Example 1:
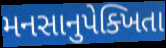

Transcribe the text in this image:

મનસાનુપેક્ખિતા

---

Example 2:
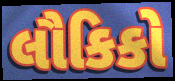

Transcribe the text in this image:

લૌકિકો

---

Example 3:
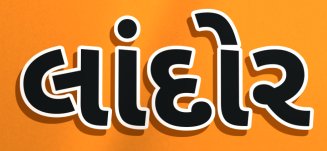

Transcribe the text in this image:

લાંદોર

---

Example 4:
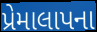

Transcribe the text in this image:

પ્રેમાલાપના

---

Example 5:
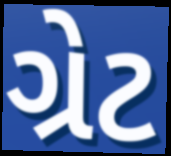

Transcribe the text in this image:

ગ્રેટ